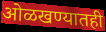
ओळखण्यातही